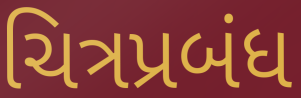
ચિત્રપ્રબંધ